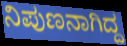
ನಿಪುಣನಾಗಿದ್ದ